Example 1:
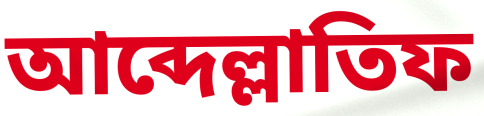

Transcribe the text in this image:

আব্দেল্লাতিফ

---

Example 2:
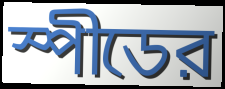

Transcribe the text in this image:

স্পীডের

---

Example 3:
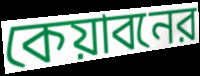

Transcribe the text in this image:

কেয়াবনের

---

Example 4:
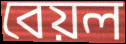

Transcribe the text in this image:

বেয়ল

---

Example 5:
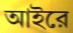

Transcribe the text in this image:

আইরে